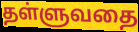
தள்ளுவதை